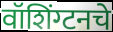
वॉशिंग्टनचे